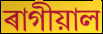
ৰাগীয়াল